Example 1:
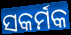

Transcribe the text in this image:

ସକର୍ମକ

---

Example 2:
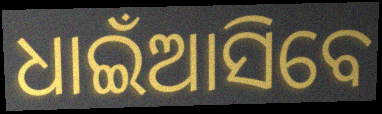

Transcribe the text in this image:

ଧାଇଁଆସିବେ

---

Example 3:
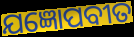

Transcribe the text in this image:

ଯଜ୍ଞୋପବୀତ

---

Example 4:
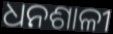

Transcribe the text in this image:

ଧନଶାଳୀ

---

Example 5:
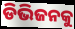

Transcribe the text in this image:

ଡିଭିଜନକୁ